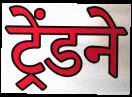
ट्रेंडने